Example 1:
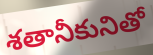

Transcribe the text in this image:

శతానీకునితో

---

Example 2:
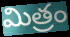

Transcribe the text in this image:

మిత్రం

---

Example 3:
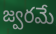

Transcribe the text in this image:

జ్వరమే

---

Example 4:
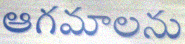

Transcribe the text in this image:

ఆగమాలను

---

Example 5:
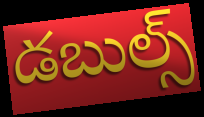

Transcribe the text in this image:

డబుల్స్